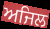
ਅਜਿਲ